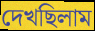
দেখছিলাম